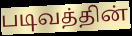
படிவத்தின்